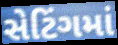
સેટિંગમાં